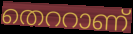
തെററാണ്